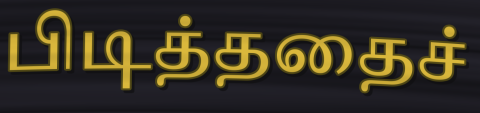
பிடித்ததைச்